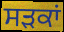
ਸੜਕਾਂ